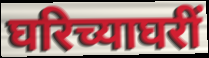
घरिच्याघरीं